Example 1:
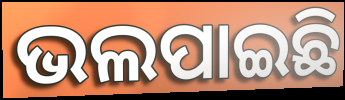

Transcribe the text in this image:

ଭଲପାଇଛି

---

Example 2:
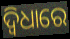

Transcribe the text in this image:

ଦ୍ଵିଧାରେ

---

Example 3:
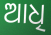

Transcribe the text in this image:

ଆଧି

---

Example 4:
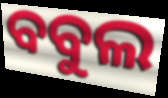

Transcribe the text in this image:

ବବୁଲ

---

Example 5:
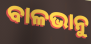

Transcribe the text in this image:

ବାଳଭାନୁ